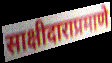
साक्षीदाराप्रमाणे